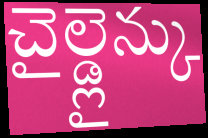
చైల్డ్లైన్కు